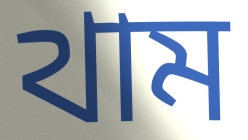
থাম